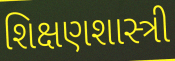
શિક્ષણશાસ્ત્રી